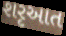
શરૃઆત